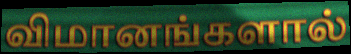
விமானங்களால்